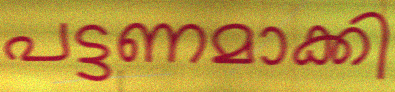
പട്ടണമാക്കി